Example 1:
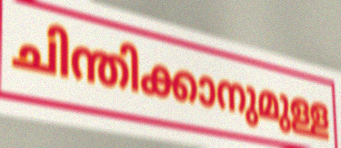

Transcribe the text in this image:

ചിന്തിക്കാനുമുള്ള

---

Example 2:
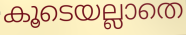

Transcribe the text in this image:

കൂടെയല്ലാതെ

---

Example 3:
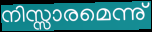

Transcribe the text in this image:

നിസ്സാരമെന്നു്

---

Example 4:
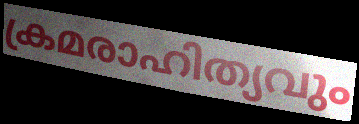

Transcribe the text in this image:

ക്രമരാഹിത്യവും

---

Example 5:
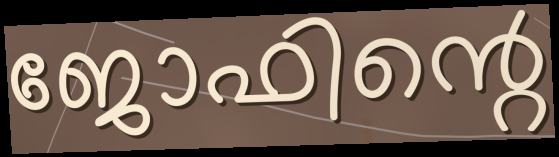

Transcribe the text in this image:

ജോഫിന്റെ